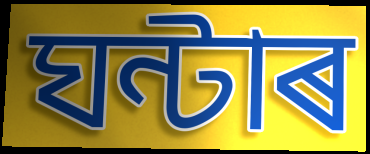
ঘন্টাৰ